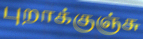
புறாக்குஞ்சு